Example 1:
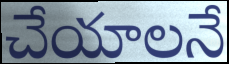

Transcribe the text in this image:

చేయాలనే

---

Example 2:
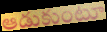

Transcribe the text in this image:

ఆడుకుంటూ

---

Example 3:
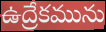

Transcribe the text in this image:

ఉద్రేకమును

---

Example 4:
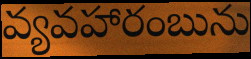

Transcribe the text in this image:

వ్యవహారంబును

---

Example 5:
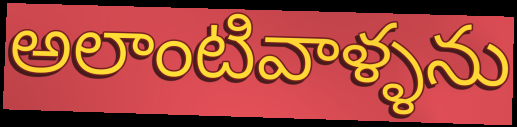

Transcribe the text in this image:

అలాంటివాళ్ళను